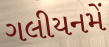
ગલીયનમેં